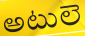
అటులె